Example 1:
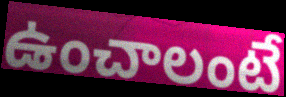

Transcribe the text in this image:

ఉంచాలంటే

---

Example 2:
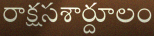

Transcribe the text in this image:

రాక్షసశార్దూలం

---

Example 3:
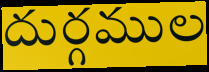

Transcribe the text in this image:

దుర్గముల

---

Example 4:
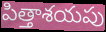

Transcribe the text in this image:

పిత్తాశయపు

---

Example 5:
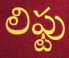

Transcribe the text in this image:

లిఫ్టు